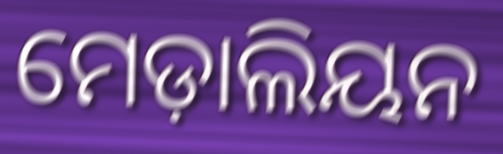
ମେଡ଼ାଲିୟନ